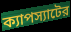
ক্যাপস্যাটের